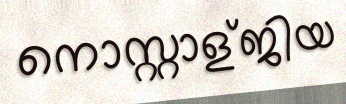
നൊസ്റ്റാള്ജിയ